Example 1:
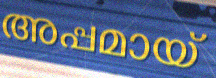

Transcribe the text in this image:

അപ്പമായ്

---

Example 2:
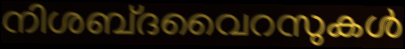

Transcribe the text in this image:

നിശബ്‌ദവൈറസുകൾ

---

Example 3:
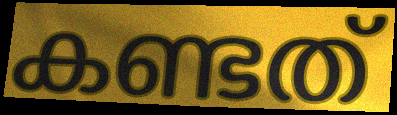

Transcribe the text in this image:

കണ്ടത്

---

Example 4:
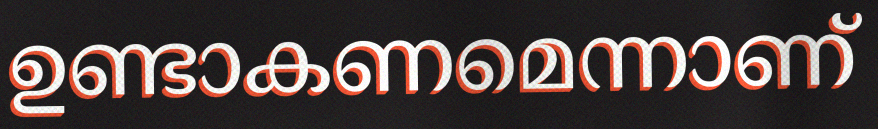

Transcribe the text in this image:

ഉണ്ടാകണമെന്നാണ്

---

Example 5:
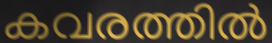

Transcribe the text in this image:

കവരത്തിൽ